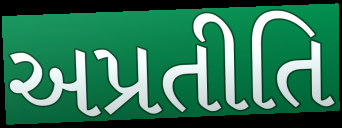
અપ્રતીતિ